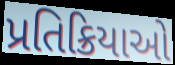
પ્રતિક્રિયાઓ